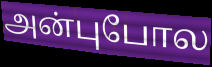
அன்புபோல